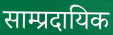
साम्प्रदायिक